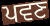
ਪਵਣ